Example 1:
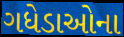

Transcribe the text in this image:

ગધેડાઓના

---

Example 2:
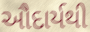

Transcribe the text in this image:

ઔદાર્યથી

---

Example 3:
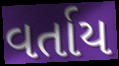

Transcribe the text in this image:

વર્તાય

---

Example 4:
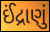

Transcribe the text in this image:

ઈંદ્રાણું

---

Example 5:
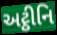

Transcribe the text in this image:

અટ્ઠીનિ